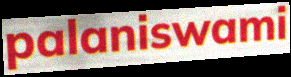
palaniswami